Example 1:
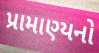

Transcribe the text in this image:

પ્રામાણ્યનો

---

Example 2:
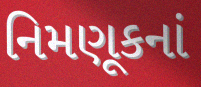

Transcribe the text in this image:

નિમણૂકનાં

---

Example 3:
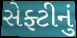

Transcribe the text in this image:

સેફ્ટીનું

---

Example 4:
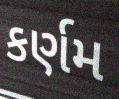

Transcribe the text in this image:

કર્ણમ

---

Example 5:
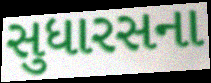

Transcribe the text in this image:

સુધારસના